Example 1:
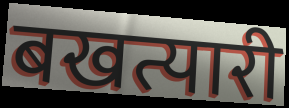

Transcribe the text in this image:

बखत्यारी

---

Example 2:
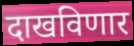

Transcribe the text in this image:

दाखविणार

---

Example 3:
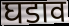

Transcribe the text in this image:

घडाव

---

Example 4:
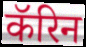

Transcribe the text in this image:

कॅरिन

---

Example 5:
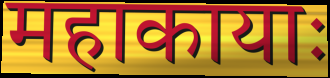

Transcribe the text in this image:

महाकायाः